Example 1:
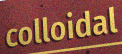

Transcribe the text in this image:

colloidal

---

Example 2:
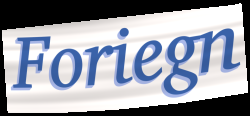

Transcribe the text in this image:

Foriegn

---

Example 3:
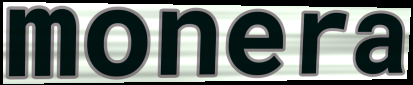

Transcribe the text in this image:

monera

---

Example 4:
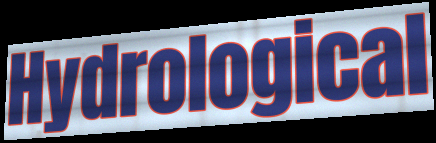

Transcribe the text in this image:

Hydrological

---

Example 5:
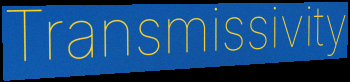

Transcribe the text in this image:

Transmissivity